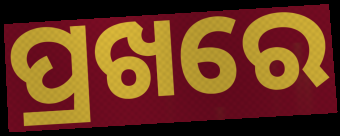
ପ୍ରଖରେ